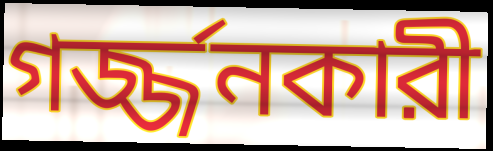
গর্জ্জনকারী